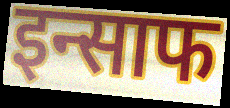
इन्साफ